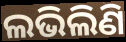
ଲଭିଲିଣି